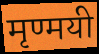
मृण्मयी